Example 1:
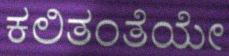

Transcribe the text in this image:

ಕಲಿತಂತೆಯೇ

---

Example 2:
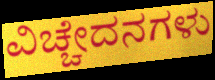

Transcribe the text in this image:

ವಿಚ್ಚೇದನಗಳು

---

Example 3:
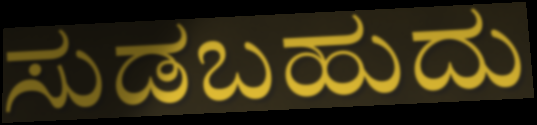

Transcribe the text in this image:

ಸುಡಬಹುದು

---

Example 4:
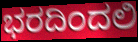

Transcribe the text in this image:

ಭರದಿಂದಲಿ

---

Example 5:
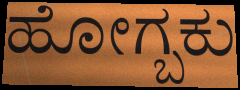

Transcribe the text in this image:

ಹೋಗ್ಬಕು